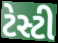
ટેસ્ટી